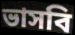
ভাসবি